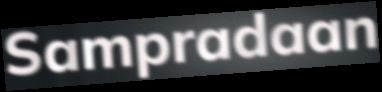
Sampradaan